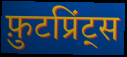
फ़ुटप्रिंट्स